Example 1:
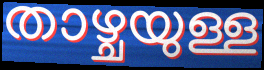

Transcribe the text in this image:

താഴ്ചയുള്ള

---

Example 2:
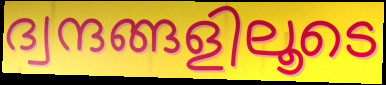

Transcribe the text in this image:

ദ്വന്ദങ്ങളിലൂടെ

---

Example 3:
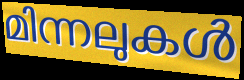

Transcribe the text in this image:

മിന്നലുകൾ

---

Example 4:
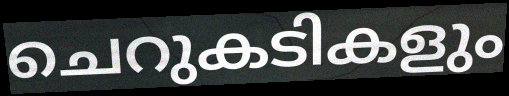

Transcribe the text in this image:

ചെറുകടികളും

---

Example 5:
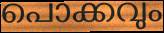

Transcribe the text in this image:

പൊക്കവും